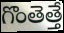
గొంతెత్తే